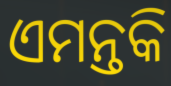
ଏମନ୍ତକି